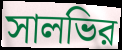
সালভির